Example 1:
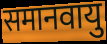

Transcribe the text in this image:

समानवायु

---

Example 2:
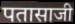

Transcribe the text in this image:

पतासाजी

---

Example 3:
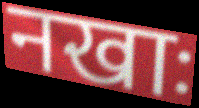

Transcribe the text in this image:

नखाः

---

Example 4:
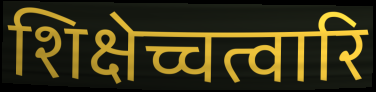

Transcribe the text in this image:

शिक्षेच्चत्वारि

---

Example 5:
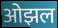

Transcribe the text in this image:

ओझल